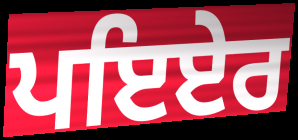
ਪਇਏਰ